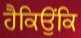
ਹੈਕਿਉਂਕਿ